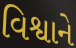
વિશ્વાને